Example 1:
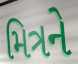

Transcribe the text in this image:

મિત્રને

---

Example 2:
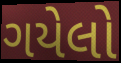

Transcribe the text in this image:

ગયેલો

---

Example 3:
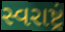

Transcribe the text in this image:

સ્વરાષ્ટ્રં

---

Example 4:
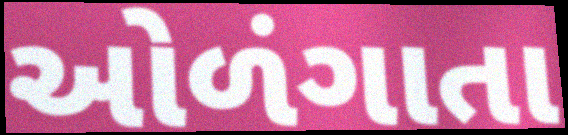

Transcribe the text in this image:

ઓળંગાતા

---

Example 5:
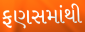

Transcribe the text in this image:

ફણસમાંથી